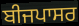
ਬੀਜਪਾਸਰ